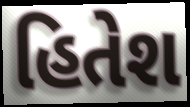
હિતેશ